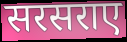
सरसराए